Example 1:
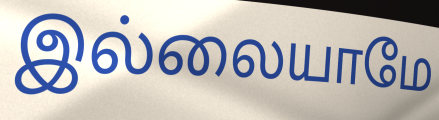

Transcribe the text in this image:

இல்லையாமே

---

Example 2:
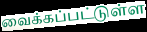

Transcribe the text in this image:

வைக்கப்பட்டுள்ள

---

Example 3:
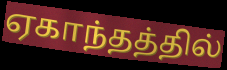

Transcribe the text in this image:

ஏகாந்தத்தில்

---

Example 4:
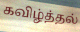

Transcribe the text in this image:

கவிழ்த்தல்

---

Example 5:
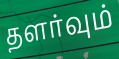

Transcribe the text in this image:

தளர்வும்